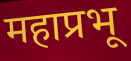
महाप्रभू